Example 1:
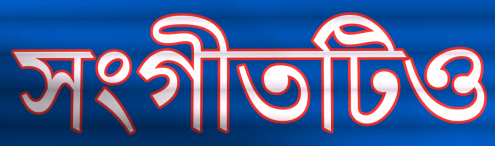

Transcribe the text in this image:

সংগীতটিও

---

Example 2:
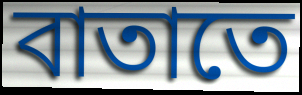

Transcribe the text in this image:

বাতাতে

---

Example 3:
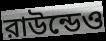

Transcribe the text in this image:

রাউন্ডেও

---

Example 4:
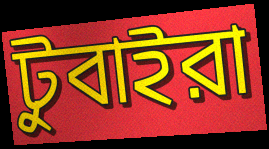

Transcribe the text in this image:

টুবাইরা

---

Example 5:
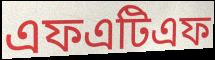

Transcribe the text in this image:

এফএটিএফ